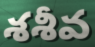
శశీవ